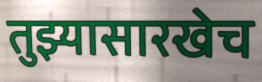
तुझ्यासारखेच